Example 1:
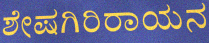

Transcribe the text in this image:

ಶೇಷಗಿರಿರಾಯನ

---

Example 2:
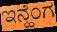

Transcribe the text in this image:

ಇನ್ಹೆಂಗ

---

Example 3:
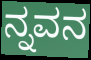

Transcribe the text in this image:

ನ್ನವನ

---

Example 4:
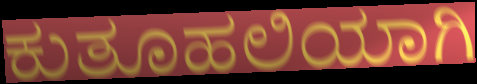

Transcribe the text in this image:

ಕುತೂಹಲಿಯಾಗಿ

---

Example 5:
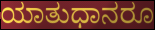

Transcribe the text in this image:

ಯಾತುಧಾನರೂ